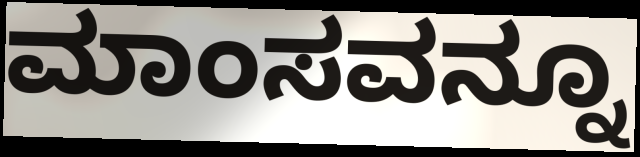
ಮಾಂಸವನ್ನೂ